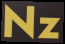
Nz